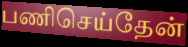
பணிசெய்தேன்